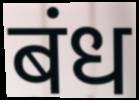
बंध